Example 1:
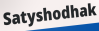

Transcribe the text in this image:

Satyshodhak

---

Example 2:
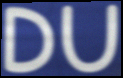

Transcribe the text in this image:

DU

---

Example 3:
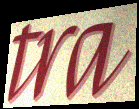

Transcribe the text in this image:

tra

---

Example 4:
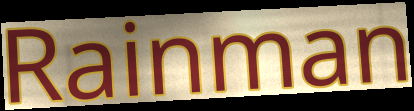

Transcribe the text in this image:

Rainman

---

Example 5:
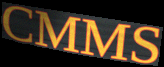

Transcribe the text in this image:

CMMS